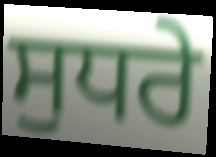
ਸੁਧਰੇ